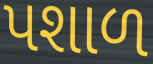
પશાળ